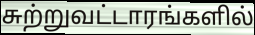
சுற்றுவட்டாரங்களில்